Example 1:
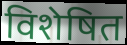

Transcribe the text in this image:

विशेषित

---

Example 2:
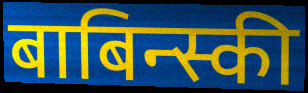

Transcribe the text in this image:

बाबिन्स्की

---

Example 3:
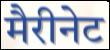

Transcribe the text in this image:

मैरीनेट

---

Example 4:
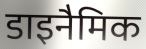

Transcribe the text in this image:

डाइनैमिक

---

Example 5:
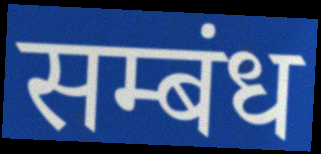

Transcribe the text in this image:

सम्बंध